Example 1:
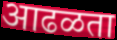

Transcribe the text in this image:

आढळता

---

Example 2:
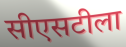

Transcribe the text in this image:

सीएसटीला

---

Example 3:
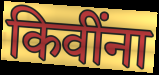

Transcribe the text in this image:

किवींना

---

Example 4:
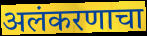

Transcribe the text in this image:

अलंकरणाचा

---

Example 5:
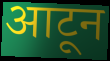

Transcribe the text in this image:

आटून